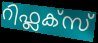
റിഫ്ലക്സ്